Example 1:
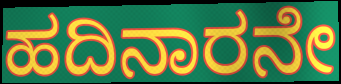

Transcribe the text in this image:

ಹದಿನಾರನೇ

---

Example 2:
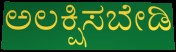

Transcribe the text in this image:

ಅಲಕ್ಷಿಸಬೇಡಿ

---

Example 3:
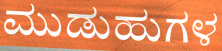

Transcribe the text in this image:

ಮುಡುಹುಗಳ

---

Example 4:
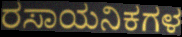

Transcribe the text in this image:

ರಸಾಯನಿಕಗಳ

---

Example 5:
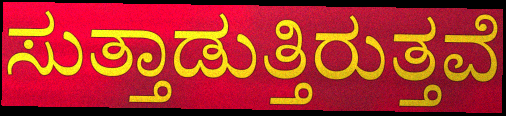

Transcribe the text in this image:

ಸುತ್ತಾಡುತ್ತಿರುತ್ತವೆ